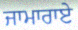
ਜਾਮਾਰਾਏ